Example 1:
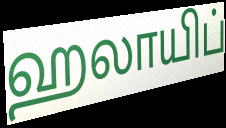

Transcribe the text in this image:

ஹலாயிப்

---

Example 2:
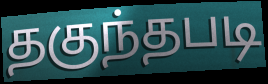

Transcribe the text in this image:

தகுந்தபடி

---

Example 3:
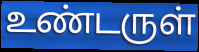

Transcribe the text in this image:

உண்டருள்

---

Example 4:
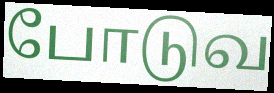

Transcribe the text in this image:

போடுவ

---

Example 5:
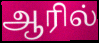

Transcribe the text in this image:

ஆரில்